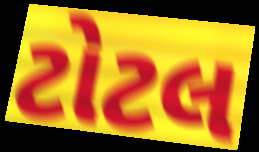
ટોટલ